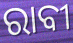
ରାବୀ